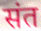
संत